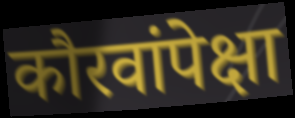
कौरवांपेक्षा